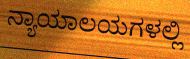
ನ್ಯಾಯಾಲಯಗಳಲ್ಲಿ